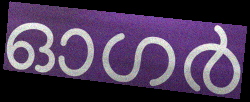
ഓഗർ